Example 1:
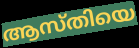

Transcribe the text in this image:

ആസ്തിയെ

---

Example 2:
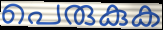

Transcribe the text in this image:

പെരുകുക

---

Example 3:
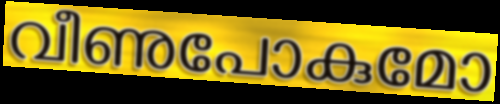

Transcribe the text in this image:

വീണുപോകുമോ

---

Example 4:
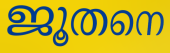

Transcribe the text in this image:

ജൂതനെ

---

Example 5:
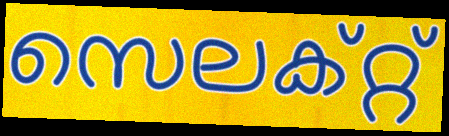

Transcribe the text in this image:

സെലക്റ്റ്